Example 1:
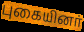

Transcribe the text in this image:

புகையினர்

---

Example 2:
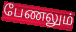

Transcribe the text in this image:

பேணலும்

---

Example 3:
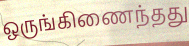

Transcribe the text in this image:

ஒருங்கிணைந்தது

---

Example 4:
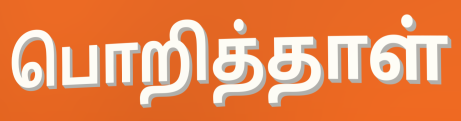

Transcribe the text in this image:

பொறித்தாள்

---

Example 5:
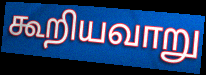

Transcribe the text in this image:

கூறியவாறு